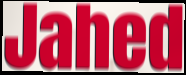
Jahed